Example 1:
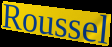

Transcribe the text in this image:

Roussel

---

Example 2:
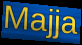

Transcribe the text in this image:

Majja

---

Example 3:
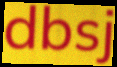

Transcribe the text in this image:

dbsj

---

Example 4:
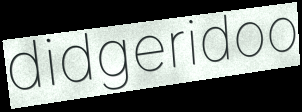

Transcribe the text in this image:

didgeridoo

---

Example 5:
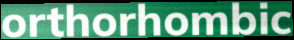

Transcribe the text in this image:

orthorhombic